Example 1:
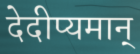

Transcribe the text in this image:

देदीप्यमान्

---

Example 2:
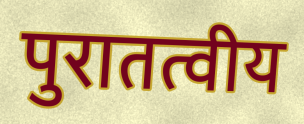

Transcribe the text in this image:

पुरातत्वीय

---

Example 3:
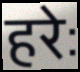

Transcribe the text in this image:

हरेः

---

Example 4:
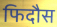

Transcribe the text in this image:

फिदौस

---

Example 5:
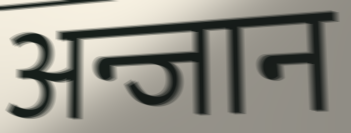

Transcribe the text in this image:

अन्जान